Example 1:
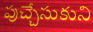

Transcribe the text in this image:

పుచ్చేసుకుని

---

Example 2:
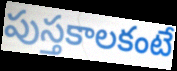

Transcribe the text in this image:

పుస్తకాలకంటే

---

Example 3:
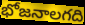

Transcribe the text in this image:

భోజనాలగది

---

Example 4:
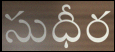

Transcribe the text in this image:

సుధీర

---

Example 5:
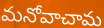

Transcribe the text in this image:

మనోవాచామ